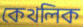
কেথলিক